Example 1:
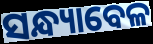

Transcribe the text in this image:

ସନ୍ଧ୍ୟାବେଳ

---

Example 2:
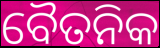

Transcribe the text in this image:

ବୈତନିକ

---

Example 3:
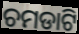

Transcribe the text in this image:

ଚମଡାଟି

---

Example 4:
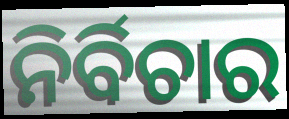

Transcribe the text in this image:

ନିର୍ବିଚାର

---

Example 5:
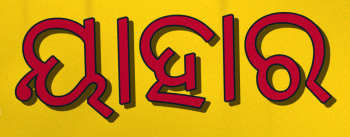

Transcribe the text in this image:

ୟାହାର